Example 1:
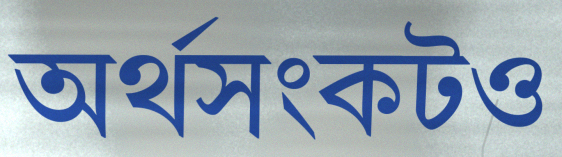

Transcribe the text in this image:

অর্থসংকটও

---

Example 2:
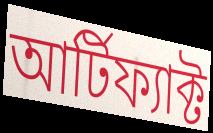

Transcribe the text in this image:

আর্টিফ্যাক্ট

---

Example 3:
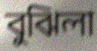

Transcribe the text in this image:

বুঝিলা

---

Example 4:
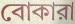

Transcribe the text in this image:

বোকারা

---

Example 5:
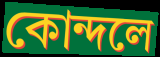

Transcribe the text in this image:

কোন্দলে